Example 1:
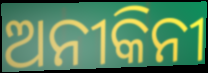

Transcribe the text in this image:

ଅନୀକିନୀ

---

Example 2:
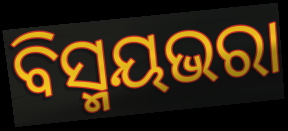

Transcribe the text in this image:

ବିସ୍ମୟଭରା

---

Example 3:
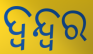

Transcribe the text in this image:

ଦ୍ଵନ୍ଦ୍ୱର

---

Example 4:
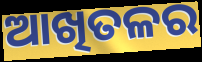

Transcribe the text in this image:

ଆଖିତଳର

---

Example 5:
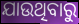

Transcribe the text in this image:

ଯାଉଥିବାରୁ